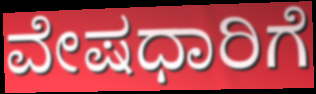
ವೇಷಧಾರಿಗೆ